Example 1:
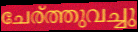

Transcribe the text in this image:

ചേര്ത്തുവച്ചു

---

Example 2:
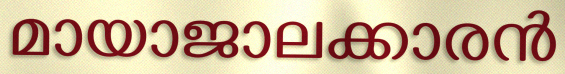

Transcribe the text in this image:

മായാജാലക്കാരൻ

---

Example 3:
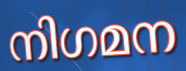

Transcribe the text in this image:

നിഗമന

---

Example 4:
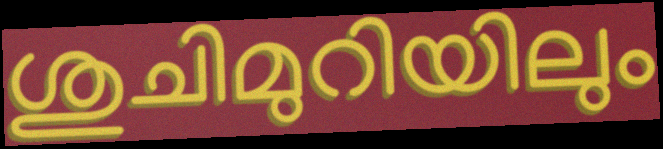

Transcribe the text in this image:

ശുചിമുറിയിലും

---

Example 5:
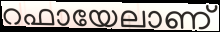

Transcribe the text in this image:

റഫായേലാണ്